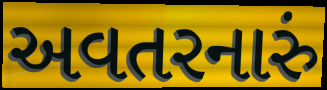
અવતરનારું